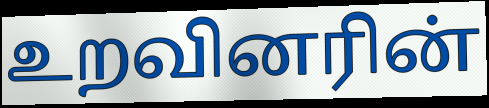
உறவினரின்